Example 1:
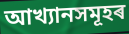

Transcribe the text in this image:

আখ্যানসমূহৰ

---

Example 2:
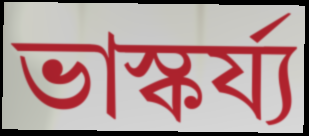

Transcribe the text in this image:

ভাস্কৰ্য্য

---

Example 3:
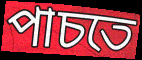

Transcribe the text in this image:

পাচতে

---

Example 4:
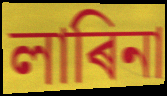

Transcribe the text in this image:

লাৰিনা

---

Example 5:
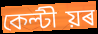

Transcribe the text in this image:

কেল্টীয়ৰ